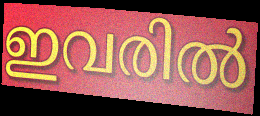
ഇവരിൽ